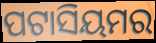
ପଟାସିୟମର